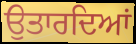
ਉਤਾਰਦਿਆਂ